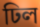
ঢিল